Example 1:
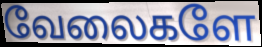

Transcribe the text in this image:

வேலைகளே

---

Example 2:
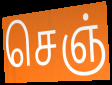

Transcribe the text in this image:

செஞ்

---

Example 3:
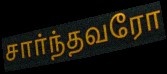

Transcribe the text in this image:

சார்ந்தவரோ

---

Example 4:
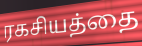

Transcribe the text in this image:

ரகசியத்தை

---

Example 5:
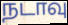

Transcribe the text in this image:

நடாவு